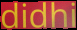
didhi